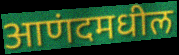
आणंदमधील